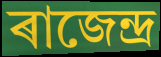
ৰাজেন্দ্ৰ